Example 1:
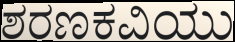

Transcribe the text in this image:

ಶರಣಕವಿಯು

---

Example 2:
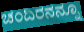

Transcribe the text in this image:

ಚಂದಿರನನ್ನೂ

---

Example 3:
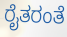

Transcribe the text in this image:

ರೈತರಂತೆ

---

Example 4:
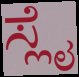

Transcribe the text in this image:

ಸ್ಲೈ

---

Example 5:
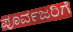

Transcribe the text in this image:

ಪೂರ್ವಜರಿಗೆ